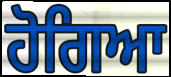
ਹੋਗਿਆ